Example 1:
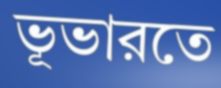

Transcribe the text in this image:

ভূভারতে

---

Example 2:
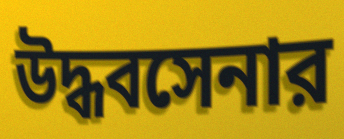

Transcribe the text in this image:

উদ্ধবসেনার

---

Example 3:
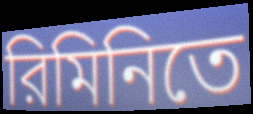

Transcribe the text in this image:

রিমিনিতে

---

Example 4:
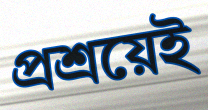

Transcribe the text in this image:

প্রশ্রয়েই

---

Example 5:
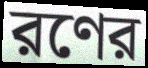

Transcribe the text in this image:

রণের